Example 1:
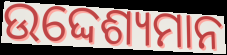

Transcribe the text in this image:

ଉଦ୍ଦେଶ୍ୟମାନ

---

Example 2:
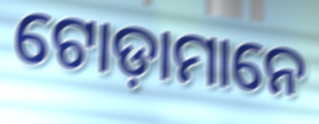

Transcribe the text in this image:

ଟୋଡ଼ାମାନେ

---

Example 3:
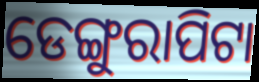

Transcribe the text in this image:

ଡେଙ୍ଗୁରାପିଟା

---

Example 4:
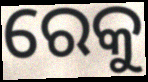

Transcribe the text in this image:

ରେକୁ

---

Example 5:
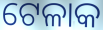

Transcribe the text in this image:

ଟେଳାକ